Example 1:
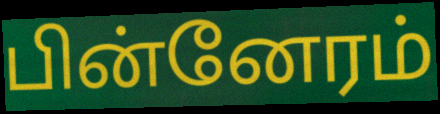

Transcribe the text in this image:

பின்னேரம்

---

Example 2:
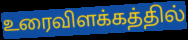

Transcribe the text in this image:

உரைவிளக்கத்தில்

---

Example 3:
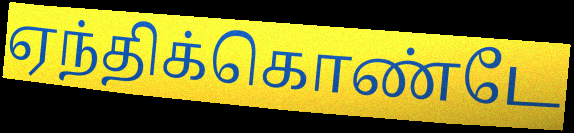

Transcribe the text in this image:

ஏந்திக்கொண்டே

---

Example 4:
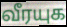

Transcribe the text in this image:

வீரயுக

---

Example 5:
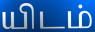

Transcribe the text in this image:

யிடம்